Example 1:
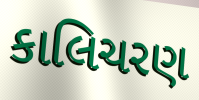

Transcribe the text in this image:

કાલિચરણ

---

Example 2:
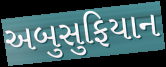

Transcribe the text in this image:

અબુસુફિયાન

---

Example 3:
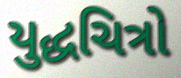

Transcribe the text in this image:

યુદ્ધચિત્રો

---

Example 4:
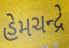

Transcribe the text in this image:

હેમચન્દ્રે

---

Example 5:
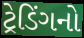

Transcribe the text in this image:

ટ્રેડિંગનો